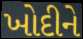
ખોદીને